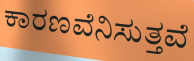
ಕಾರಣವೆನಿಸುತ್ತವೆ